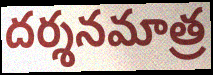
దర్శనమాత్ర